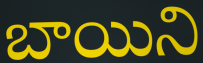
బాయిని